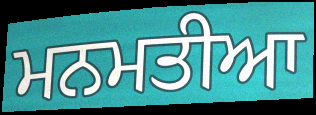
ਮਨਮਤੀਆ